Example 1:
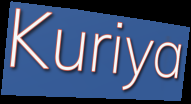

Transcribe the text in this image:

Kuriya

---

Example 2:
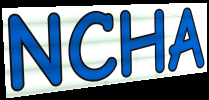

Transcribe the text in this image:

NCHA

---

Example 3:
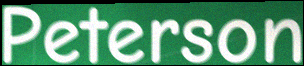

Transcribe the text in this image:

Peterson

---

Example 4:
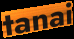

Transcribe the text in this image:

tanai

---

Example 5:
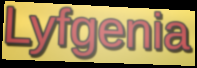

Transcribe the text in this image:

Lyfgenia